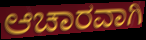
ಆಚಾರವಾಗಿ